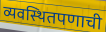
व्यवस्थितपणाची